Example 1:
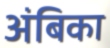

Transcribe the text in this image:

अंबिका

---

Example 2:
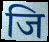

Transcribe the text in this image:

जि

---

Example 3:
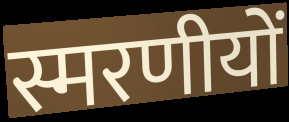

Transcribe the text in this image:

स्मरणीयों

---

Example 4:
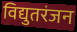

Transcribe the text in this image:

विद्युतरंजन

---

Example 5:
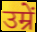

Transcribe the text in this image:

उम्रें